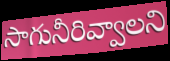
సాగునీరివ్వాలని